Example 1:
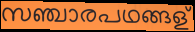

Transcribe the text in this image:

സഞ്ചാരപഥങ്ങള്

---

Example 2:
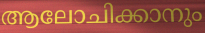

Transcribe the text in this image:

ആലോചിക്കാനും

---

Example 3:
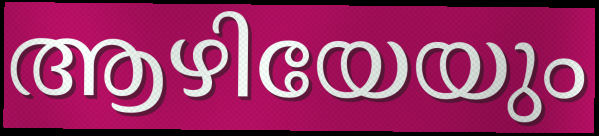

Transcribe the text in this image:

ആഴിയേയും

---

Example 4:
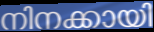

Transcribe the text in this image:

നിനക്കായി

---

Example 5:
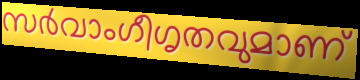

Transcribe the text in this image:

സർവാംഗീഗൃതവുമാണ്